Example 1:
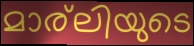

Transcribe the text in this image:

മാര്ലിയുടെ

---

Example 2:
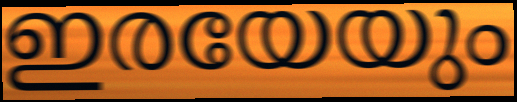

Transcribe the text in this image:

ഇരയേയും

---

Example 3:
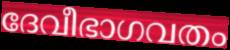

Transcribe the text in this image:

ദേവീഭാഗവതം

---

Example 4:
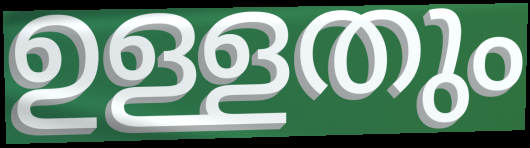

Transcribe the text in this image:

ഉള്ളതും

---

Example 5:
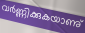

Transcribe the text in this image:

വർണ്ണിക്കുകയാണു്